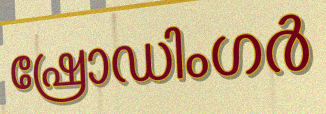
ഷ്രോഡിംഗർ